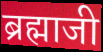
ब्रह्माजी